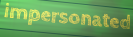
impersonated